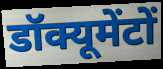
डॉक्यूमेंटों